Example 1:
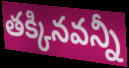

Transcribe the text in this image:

తక్కినవన్నీ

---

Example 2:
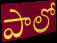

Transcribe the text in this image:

పాలో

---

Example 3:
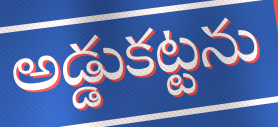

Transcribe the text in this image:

అడ్డుకట్టను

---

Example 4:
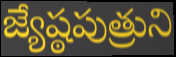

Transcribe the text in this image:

జ్యేష్ఠపుత్రుని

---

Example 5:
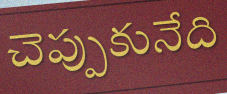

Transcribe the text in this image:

చెప్పుకునేది